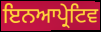
ਇਨਆਪ੍ਰੇਟਿਵ